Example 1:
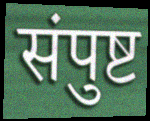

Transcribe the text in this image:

संपुष्ट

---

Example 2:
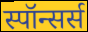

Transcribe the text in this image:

स्पॉन्सर्स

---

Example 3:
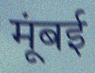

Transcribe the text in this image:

मूंबई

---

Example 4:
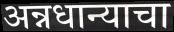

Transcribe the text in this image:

अन्नधान्याचा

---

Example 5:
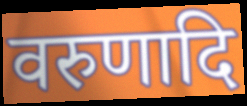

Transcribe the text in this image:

वरुणादि